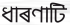
ধাৰণাটি